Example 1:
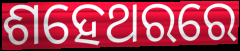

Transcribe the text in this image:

ଶହେଥରରେ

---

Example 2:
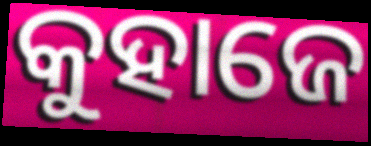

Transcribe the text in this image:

କୁହାଜେ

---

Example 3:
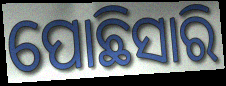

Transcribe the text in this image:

ପୋଛିସାରି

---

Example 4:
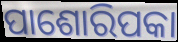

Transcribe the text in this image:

ପାଶୋରିପକା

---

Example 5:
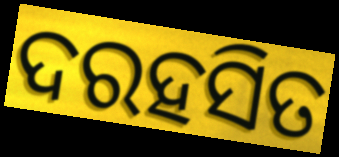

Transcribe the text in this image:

ଦରହସିତ